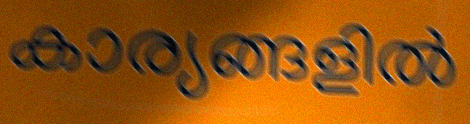
കാര്യങ്ങളിൽ